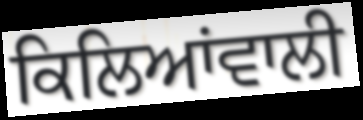
ਕਿਲਿਆਂਵਾਲੀ